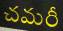
చమరీ